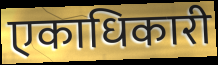
एकाधिकारी